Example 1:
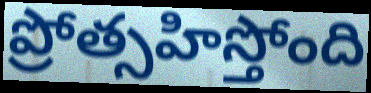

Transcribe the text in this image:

ప్రోత్సహిస్తోంది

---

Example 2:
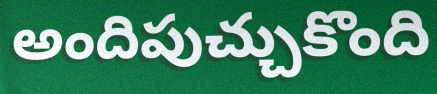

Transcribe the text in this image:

అందిపుచ్చుకొంది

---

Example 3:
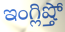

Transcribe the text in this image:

ఇంగ్లిష్తో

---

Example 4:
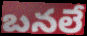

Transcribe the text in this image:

బనలే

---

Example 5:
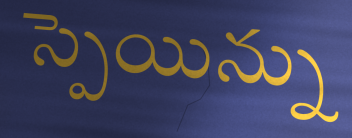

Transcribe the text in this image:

స్పెయిన్ను